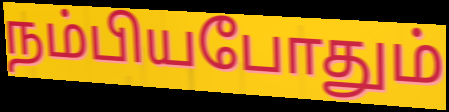
நம்பியபோதும்